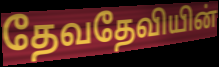
தேவதேவியின்